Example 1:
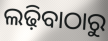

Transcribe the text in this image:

ଲଢ଼ିବାଠାରୁ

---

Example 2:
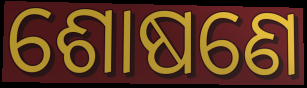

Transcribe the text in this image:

ଶୋଷଣେ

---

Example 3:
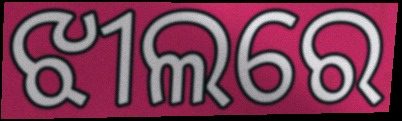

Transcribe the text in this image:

ଝୀଲରେ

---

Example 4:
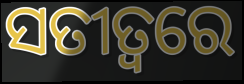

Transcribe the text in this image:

ସତୀତ୍ୱରେ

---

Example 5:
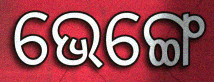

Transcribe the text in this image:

ଭେଙ୍ଗେ